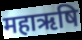
महाऋषि